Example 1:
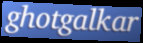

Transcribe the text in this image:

ghotgalkar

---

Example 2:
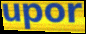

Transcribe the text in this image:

upor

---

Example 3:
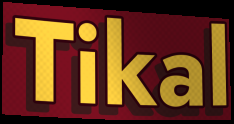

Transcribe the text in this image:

Tikal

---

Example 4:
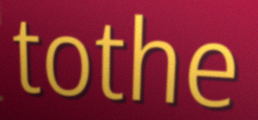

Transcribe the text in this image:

tothe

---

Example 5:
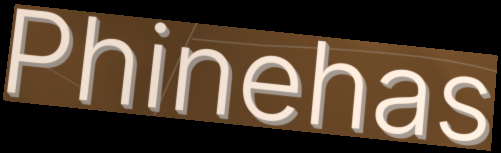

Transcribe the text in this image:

Phinehas